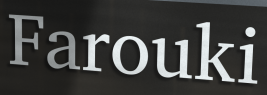
Farouki